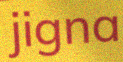
jigna